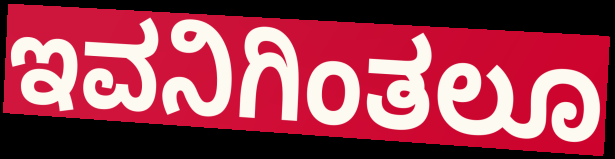
ಇವನಿಗಿಂತಲೂ